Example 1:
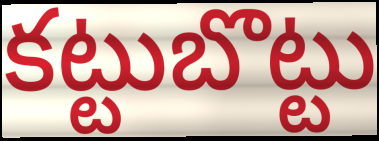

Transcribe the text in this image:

కట్టుబొట్టు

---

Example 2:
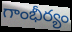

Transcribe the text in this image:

గాంభీర్యం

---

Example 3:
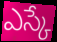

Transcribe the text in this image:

ఎస్కే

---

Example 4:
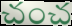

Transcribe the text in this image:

చంచ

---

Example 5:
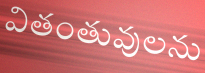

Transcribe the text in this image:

వితంతువులను